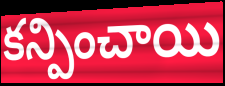
కన్పించాయి